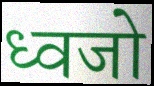
ध्वजो